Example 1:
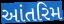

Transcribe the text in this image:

આંતરિમ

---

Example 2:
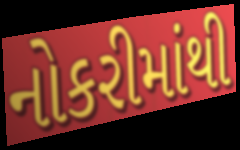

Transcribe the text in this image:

નોકરીમાંથી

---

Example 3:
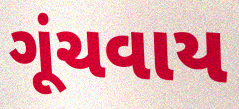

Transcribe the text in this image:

ગૂંચવાય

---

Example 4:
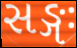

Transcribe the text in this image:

સઙ્ગઃ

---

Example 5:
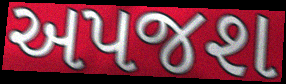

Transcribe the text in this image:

અપજશ